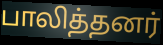
பாலித்தனர்